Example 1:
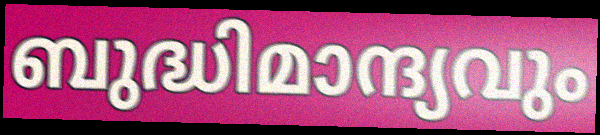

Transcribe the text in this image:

ബുദ്ധിമാന്ദ്യവും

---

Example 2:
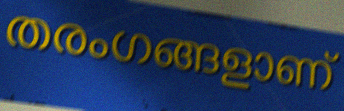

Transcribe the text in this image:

തരംഗങ്ങളാണ്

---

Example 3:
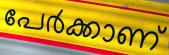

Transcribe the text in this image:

പേർക്കാണ്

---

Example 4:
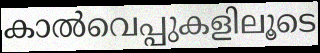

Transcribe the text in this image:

കാൽവെപ്പുകളിലൂടെ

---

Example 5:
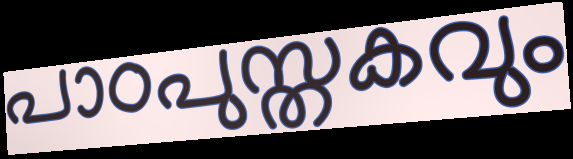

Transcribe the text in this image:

പാഠപുസ്തകവും